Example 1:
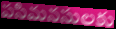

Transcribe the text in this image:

పసిమనసులకు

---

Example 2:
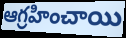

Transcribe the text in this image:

ఆగ్రహించాయి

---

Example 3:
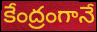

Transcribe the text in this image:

కేంద్రంగానే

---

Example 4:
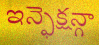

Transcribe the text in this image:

ఇన్ఫెక్షన్గా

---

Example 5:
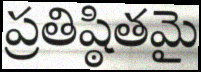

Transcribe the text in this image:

ప్రతిష్ఠితమై